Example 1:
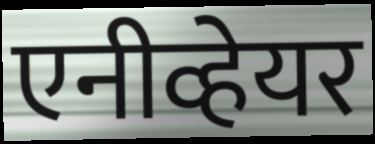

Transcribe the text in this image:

एनीव्हेयर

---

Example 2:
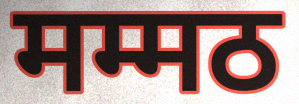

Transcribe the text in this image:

मम्मठ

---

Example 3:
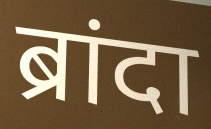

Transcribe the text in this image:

ब्रांदा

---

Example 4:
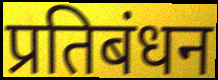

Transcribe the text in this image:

प्रतिबंधन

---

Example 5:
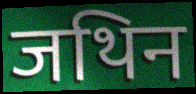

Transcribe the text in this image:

जथिन